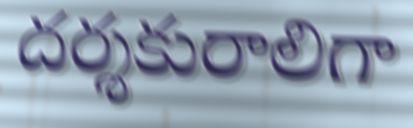
దర్శకురాలిగా